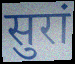
सुरां